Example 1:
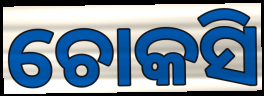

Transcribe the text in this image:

ଚୋକସି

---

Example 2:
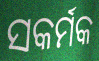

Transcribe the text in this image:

ସକର୍ମକ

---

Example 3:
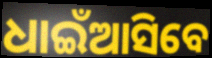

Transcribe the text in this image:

ଧାଇଁଆସିବେ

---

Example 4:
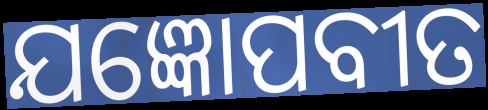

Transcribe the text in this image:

ଯଜ୍ଞୋପବୀତ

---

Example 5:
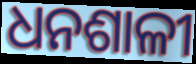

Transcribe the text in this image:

ଧନଶାଳୀ